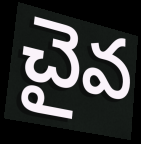
చైవ